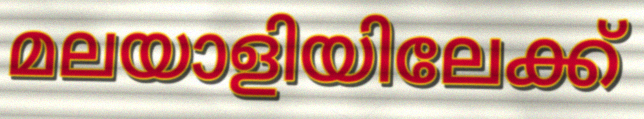
മലയാളിയിലേക്ക്